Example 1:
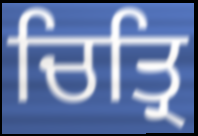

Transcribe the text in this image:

ਚਿਤ੍ਰਿ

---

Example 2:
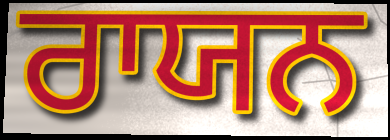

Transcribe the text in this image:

ਰਾਯਨ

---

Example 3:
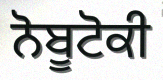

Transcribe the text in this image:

ਨੋਬੂਟੋਕੀ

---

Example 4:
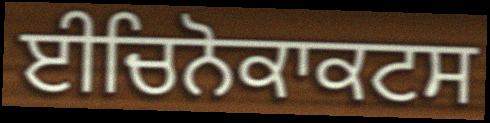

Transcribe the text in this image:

ਈਚਿਨੋਕਾਕਟਸ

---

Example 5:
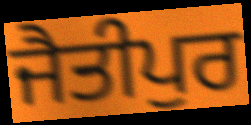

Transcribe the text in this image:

ਜੈਤੀਪੁਰ